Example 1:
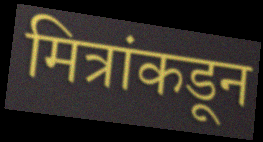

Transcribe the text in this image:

मित्रांकडून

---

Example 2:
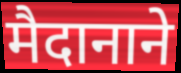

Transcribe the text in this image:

मैदानाने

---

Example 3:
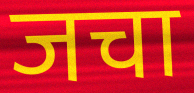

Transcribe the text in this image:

जचा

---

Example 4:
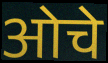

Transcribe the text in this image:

ओचे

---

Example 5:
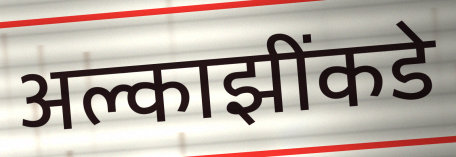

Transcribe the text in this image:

अल्काझींकडे